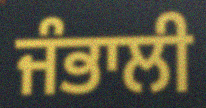
ਜੰਭਾਲੀ